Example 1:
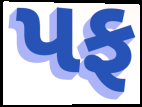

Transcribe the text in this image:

પફ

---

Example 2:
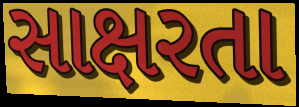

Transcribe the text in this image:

સાક્ષરતા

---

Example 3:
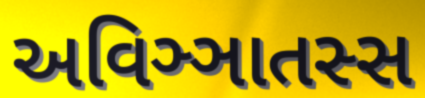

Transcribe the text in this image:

અવિઞ્ઞાતસ્સ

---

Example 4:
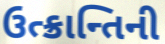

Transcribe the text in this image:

ઉત્ક્રાન્તિની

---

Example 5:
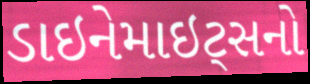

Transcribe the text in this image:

ડાઇનેમાઇટ્સનો